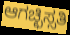
ಆಗಚ್ಛಿಸ್ಸತಿ